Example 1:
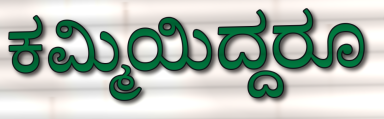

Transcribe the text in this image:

ಕಮ್ಮಿಯಿದ್ದರೂ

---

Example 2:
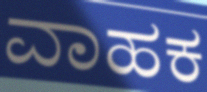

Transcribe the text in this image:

ವಾಹಕ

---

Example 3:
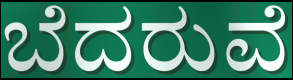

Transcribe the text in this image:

ಬೆದರುವೆ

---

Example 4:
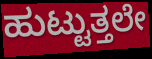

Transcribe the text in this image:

ಹುಟ್ಟುತ್ತಲೇ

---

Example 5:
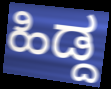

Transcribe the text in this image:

ಹಿಡ್ದ